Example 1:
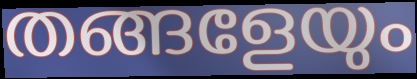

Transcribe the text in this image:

തങ്ങളേയും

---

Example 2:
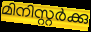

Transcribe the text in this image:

മിനിസ്റ്റർക്കു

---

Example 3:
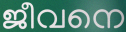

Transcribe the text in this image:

ജീവനെ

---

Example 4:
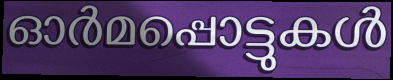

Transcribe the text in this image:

ഓർമപ്പൊട്ടുകൾ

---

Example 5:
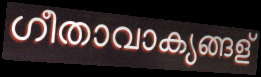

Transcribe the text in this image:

ഗീതാവാക്യങ്ങള്